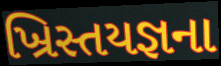
ખ્રિસ્તયજ્ઞના